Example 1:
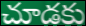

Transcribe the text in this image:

చూడకు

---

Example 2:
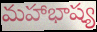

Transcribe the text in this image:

మహాభాష్య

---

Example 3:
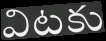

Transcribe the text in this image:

విటకు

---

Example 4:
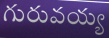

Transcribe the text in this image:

గురువయ్య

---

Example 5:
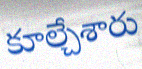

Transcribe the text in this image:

కూల్చేశారు